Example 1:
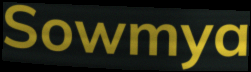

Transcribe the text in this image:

Sowmya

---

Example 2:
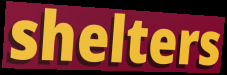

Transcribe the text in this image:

shelters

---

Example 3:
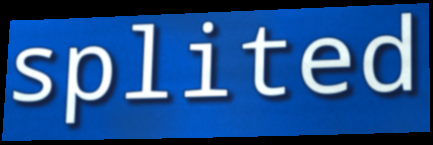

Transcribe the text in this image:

splited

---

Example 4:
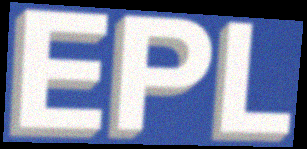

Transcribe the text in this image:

EPL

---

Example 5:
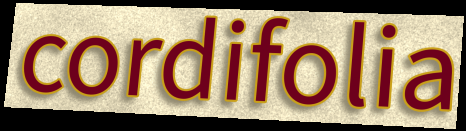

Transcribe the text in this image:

cordifolia